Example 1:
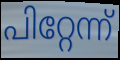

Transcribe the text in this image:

പിറ്റേന്ന്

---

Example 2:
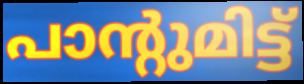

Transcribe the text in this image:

പാന്റുമിട്ട്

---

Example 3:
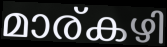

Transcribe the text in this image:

മാര്കഴി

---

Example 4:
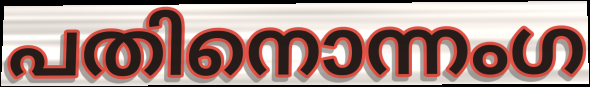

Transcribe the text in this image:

പതിനൊന്നംഗ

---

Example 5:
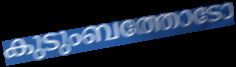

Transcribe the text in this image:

കുടുംബത്തോടോ